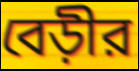
বেড়ীর